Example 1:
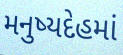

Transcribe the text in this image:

મનુષ્યદેહમાં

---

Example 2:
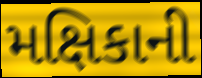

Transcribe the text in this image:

મક્ષિકાની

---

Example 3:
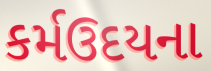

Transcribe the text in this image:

કર્મઉદયના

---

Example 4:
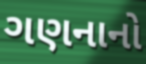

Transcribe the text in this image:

ગણનાનો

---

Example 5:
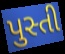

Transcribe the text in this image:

પુસ્તી